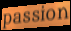
passion